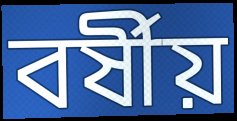
বর্ষীয়